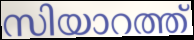
സിയാറത്ത്